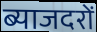
ब्याजदरों